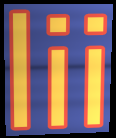
lii